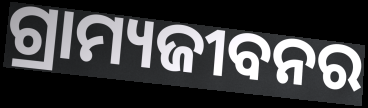
ଗ୍ରାମ୍ୟଜୀବନର